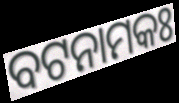
ବଟନାମକଃ